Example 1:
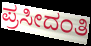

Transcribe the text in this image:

ಪ್ರಸೀದಂತಿ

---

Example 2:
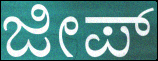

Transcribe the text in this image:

ಜೀಪ್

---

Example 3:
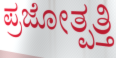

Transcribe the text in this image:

ಪ್ರಜೋತ್ಪತ್ತಿ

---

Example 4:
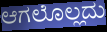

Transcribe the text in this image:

ಆಗಲೊಲ್ಲದು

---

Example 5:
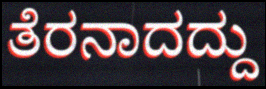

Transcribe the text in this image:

ತೆರನಾದದ್ದು